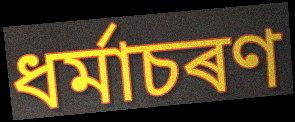
ধৰ্মাচৰণ